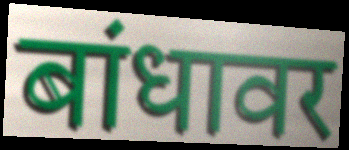
बांधावर